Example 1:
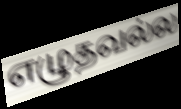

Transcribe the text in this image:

எழுதவல்ல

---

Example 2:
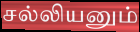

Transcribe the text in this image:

சல்லியனும்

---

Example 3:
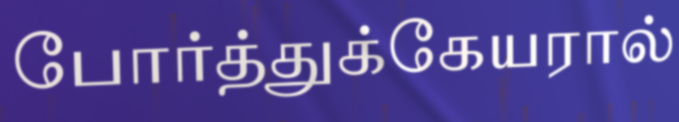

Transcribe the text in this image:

போர்த்துக்கேயரால்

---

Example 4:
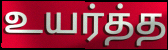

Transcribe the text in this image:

உயர்த்த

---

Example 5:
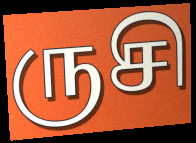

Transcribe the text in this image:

ருசி